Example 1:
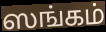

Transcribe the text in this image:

ஸங்கம்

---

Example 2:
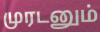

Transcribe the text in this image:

முரடனும்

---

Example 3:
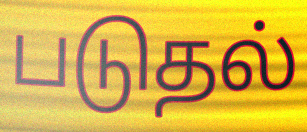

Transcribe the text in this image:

படுதல்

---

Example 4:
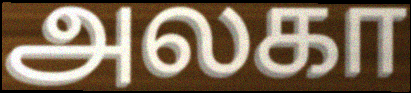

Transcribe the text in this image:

அலகா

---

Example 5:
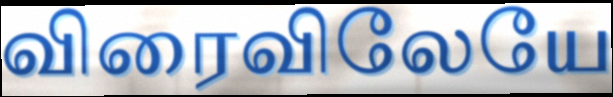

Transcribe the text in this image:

விரைவிலேயே